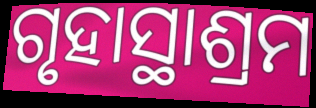
ଗୃହାସ୍ଥାଶ୍ରମ